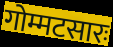
गोम्मटसारः